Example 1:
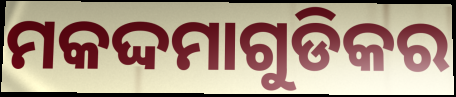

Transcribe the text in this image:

ମକଦ୍ଦମାଗୁଡିକର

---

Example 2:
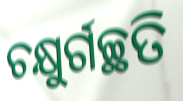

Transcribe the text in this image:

ଚକ୍ଷୁର୍ଗଚ୍ଛତି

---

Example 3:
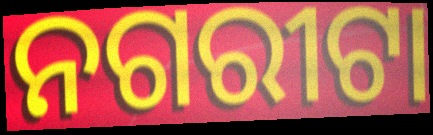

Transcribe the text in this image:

ନଗରୀଟା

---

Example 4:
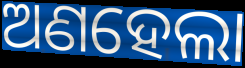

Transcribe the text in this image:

ଅଣହେଲା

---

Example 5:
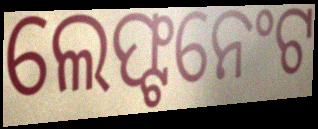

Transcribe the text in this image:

ଲେଫ୍ଟନେଂଟ